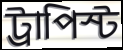
ট্রাপিস্ট